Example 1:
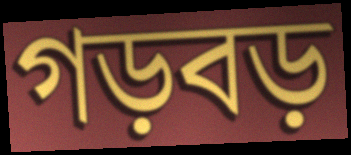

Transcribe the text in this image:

গড়বড়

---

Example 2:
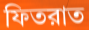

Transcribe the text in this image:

ফিতরাত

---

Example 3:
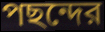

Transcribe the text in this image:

পছন্দের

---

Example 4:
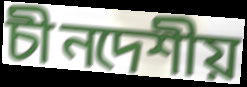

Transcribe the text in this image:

চীনদেশীয়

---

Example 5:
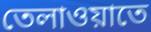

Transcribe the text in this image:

তেলাওয়াতে